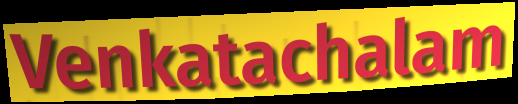
Venkatachalam